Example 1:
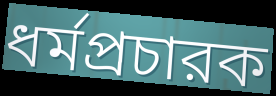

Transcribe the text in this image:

ধর্মপ্রচারক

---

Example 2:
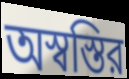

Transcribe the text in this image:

অস্বস্তির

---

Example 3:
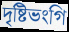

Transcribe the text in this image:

দৃষ্টিভংগি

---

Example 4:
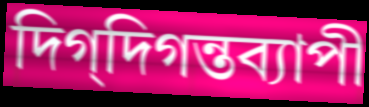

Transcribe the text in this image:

দিগ্‌দিগন্তব্যাপী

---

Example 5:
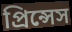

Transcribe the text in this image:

প্রিন্সেস